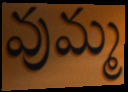
వుమ్మ